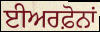
ਈਅਰਫ਼ੋਨਾਂ